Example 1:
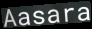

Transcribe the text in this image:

Aasara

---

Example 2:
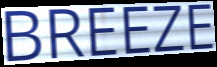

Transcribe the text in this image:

BREEZE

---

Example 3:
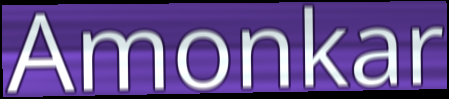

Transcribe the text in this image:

Amonkar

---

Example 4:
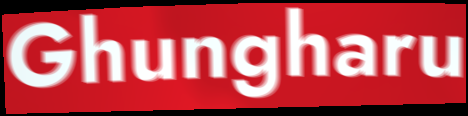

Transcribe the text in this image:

Ghungharu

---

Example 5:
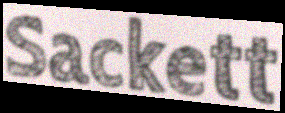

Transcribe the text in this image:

Sackett